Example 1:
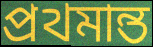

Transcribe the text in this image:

প্ৰথমান্ত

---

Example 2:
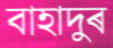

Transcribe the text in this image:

বাহাদুৰ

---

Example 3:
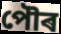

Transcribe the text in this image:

পৌৰ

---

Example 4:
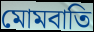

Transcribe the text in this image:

মোমবাতি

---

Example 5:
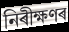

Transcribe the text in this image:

নিৰীক্ষণৰ